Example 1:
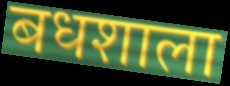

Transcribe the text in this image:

बधशाला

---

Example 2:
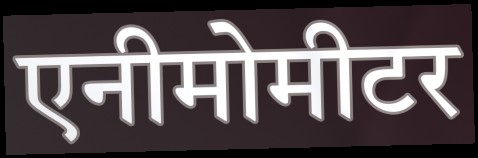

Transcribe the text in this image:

एनीमोमीटर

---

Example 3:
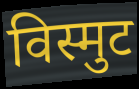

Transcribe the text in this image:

विस्मुट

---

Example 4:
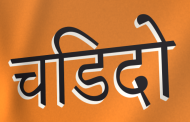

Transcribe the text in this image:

चडिदो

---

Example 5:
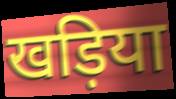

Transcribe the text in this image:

खड़िया